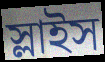
স্লাইস